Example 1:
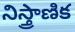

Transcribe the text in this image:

నిస్త్రాణిక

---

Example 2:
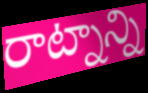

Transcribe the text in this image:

రాట్నాన్ని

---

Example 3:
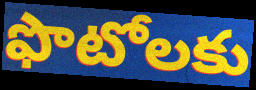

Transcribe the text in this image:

ఫొటోలకు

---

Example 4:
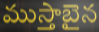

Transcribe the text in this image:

ముస్తాబైన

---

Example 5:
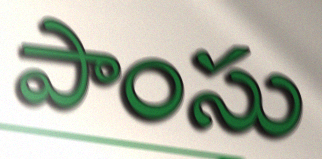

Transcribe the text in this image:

పాంసు